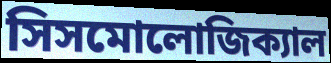
সিসমোলোজিক্যাল